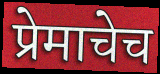
प्रेमाचेच